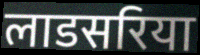
लाडसरिया